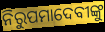
ନିରୁପମାଦେବୀଙ୍କୁ